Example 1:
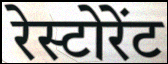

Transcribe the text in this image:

रेस्टोरेंट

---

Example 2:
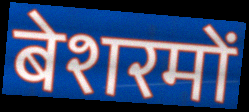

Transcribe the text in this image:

बेशरमों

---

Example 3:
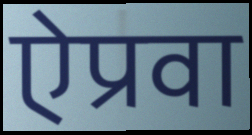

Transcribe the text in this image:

ऐप्रवा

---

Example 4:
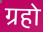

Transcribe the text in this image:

ग्रहो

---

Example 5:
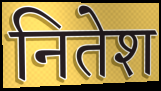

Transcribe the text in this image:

नितेश